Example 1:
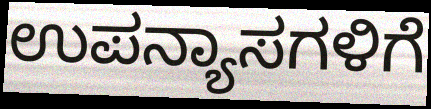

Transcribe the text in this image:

ಉಪನ್ಯಾಸಗಳಿಗೆ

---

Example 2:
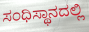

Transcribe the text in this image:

ಸಂಧಿಸ್ಥಾನದಲ್ಲಿ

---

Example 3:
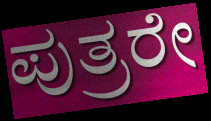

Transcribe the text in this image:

ಪುತ್ರರೇ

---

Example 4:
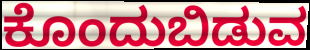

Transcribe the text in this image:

ಕೊಂದುಬಿಡುವ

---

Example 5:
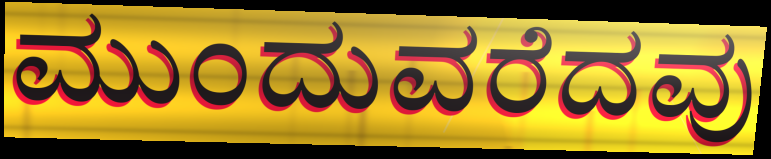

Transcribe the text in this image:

ಮುಂದುವರೆದವು